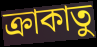
ক্রাকাতু